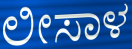
ಲೀಸಾಳ